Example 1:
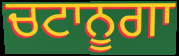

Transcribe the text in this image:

ਚਟਾਨੂਗਾ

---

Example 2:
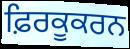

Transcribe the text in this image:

ਫ਼ਿਰਕੂਕਰਨ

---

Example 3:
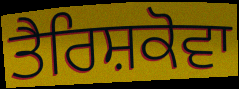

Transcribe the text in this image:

ਤੈਰਿਸ਼ਕੋਵਾ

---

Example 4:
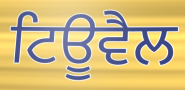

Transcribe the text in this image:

ਟਿਊਵੈਲ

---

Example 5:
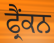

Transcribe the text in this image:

ਫ੍ਰੈਂਕਨ